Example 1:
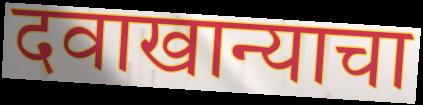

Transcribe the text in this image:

दवाखान्याचा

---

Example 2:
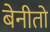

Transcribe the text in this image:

बेनीतो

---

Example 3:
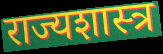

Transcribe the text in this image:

राज्यशास्त्र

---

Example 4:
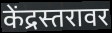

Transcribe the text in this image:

केंद्रस्तरावर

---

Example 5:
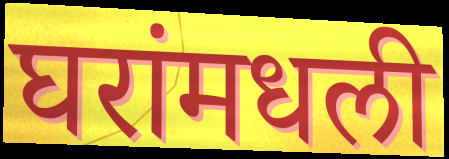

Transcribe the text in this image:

घरांमधली